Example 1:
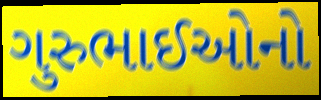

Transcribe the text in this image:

ગુરુભાઈઓનો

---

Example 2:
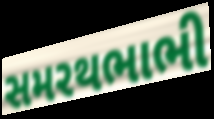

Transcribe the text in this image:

સમરથભાભી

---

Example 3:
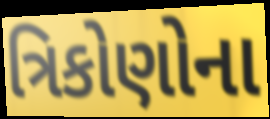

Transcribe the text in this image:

ત્રિકોણોના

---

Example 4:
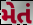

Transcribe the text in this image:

મેતં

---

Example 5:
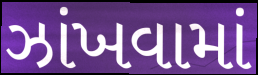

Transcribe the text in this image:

ઝાંખવામાં